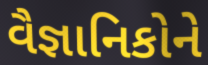
વૈજ્ઞાનિકોને